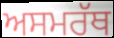
ਅਸਮਰੱਥ